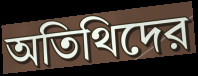
অতিথিদের